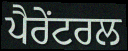
ਪੈਰੇਂਟਰਲ